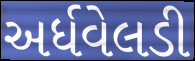
અર્ધવેલડી